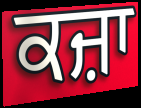
ਕਜ਼ਾ